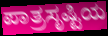
ಪಾತ್ರಸೃಷ್ಟಿಯ